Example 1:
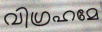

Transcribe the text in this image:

വിഗ്രഹമേ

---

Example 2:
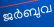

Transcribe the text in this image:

ജർബുവ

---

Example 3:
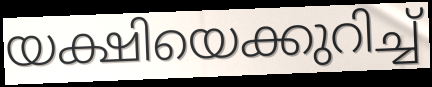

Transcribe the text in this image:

യക്ഷിയെക്കുറിച്ച്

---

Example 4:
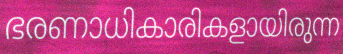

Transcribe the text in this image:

ഭരണാധികാരികളായിരുന്ന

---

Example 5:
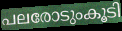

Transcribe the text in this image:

പലരോടുംകൂടി